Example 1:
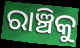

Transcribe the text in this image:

ରାଞ୍ଚିକୁ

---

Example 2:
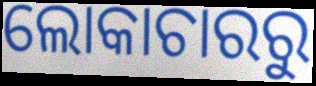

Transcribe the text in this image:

ଲୋକାଚାରରୁ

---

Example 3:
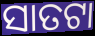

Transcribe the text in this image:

ସାତଟା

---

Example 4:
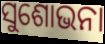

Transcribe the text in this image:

ସୁଶୋଭନା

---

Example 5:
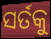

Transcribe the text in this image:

ସର୍ତକୁ